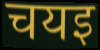
चयइ